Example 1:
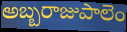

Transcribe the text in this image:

అబ్బరాజుపాలెం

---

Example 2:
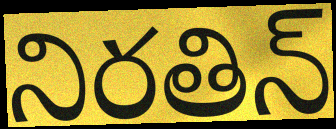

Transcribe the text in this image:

నిరతిన్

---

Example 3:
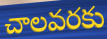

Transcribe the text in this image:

చాలవరకు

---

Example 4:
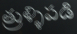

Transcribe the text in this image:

త్రుళ్ళిపడి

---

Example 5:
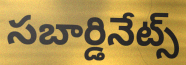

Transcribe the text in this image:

సబార్డినేట్స్